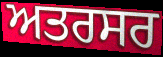
ਅਤਰਸਰ